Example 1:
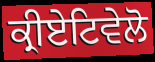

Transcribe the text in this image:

ਕ੍ਰੀਏਟਿਵੇਲੋ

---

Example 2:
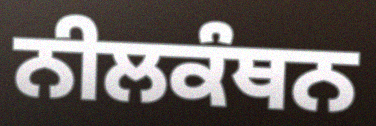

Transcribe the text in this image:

ਨੀਲਕੰਥਨ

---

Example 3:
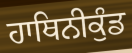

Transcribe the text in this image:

ਹਾਥਿਨੀਕੁੰਡ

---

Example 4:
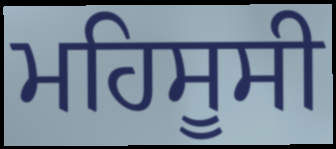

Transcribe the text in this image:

ਮਹਿਸੂਸੀ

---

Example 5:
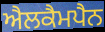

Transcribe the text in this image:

ਐਲਕੈਮਪੈਨ